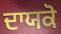
ਦਾਯਕੋ